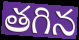
తగిన